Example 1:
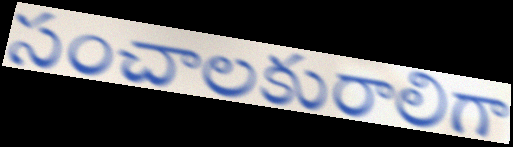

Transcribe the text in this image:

సంచాలకురాలిగా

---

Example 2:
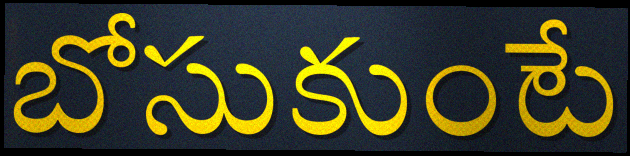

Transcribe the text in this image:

బోసుకుంటే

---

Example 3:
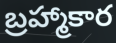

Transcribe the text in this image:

బ్రహ్మాకార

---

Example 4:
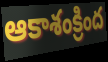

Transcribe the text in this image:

ఆకాశంక్రింద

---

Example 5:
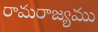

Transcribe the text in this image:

రామరాజ్యము